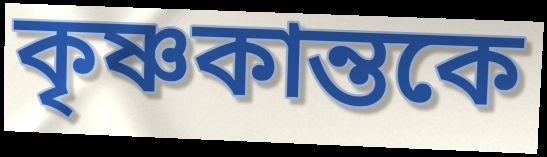
কৃষ্ণকান্তকে